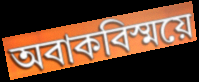
অবাকবিস্ময়ে